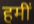
हमीं